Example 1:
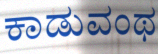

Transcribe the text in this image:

ಕಾಡುವಂಥ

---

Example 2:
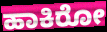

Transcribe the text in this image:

ಹಾಕಿರೋ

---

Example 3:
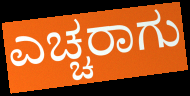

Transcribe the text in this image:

ಎಚ್ಚರಾಗು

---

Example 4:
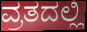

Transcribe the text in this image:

ವ್ರತದಲ್ಲಿ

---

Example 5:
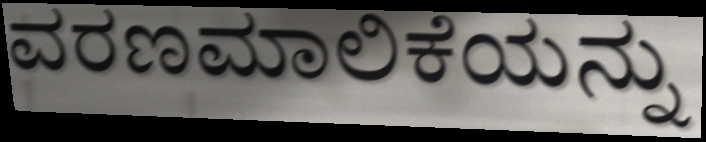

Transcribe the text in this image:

ವರಣಮಾಲಿಕೆಯನ್ನು